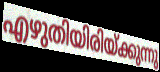
എഴുതിയിരിയ്ക്കുന്നു